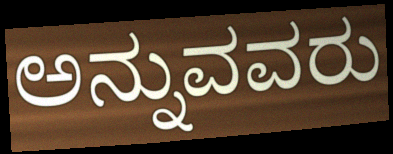
ಅನ್ನುವವರು